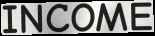
INCOME